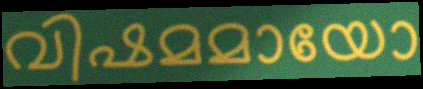
വിഷമമായോ